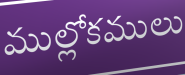
ముల్లోకములు